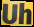
Uh